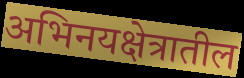
अभिनयक्षेत्रातील